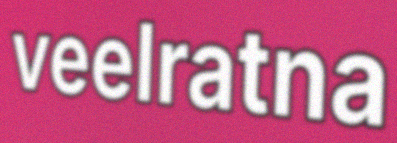
veelratna